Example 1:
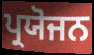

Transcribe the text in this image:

ਪ੍ਰਯੋਜਨ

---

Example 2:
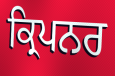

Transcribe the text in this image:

ਕ੍ਰਿਪਨਰ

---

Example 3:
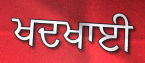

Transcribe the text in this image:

ਖਦਖਾਈ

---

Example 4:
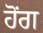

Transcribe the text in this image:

ਹੋਂਗ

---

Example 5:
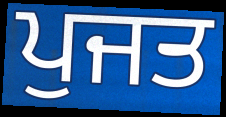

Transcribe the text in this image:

ਪੁਜਤ